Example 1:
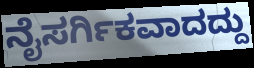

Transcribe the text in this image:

ನೈಸರ್ಗಿಕವಾದದ್ದು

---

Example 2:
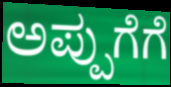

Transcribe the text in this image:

ಅಪ್ಪುಗೆಗೆ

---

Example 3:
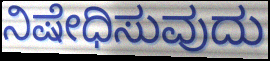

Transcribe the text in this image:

ನಿಷೇಧಿಸುವುದು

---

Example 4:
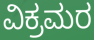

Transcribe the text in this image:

ವಿಕ್ರಮರ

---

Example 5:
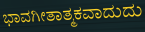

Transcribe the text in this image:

ಭಾವಗೀತಾತ್ಮಕವಾದುದು